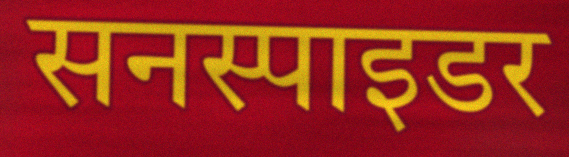
सनस्पाइडर